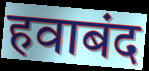
हवाबंद